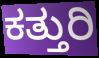
ಕತ್ತುರಿ